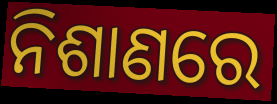
ନିଶାଣରେ